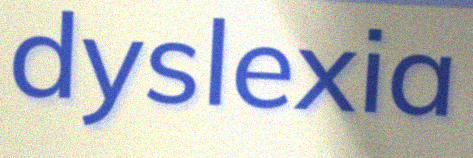
dyslexia